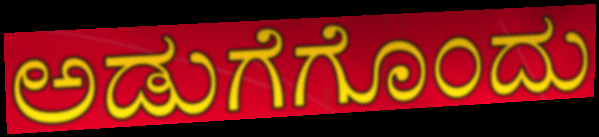
ಅಡುಗೆಗೊಂದು